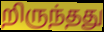
றிருந்தது